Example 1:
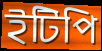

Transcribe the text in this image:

ইটিপি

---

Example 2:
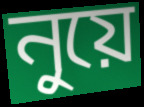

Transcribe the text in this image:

নুয়ে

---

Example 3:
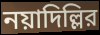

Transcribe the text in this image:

নয়াদিল্লির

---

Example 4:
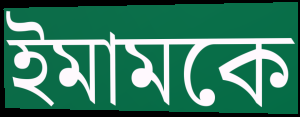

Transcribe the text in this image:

ইমামকে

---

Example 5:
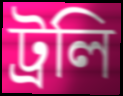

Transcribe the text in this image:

ট্রলি